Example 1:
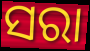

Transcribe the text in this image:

ସରା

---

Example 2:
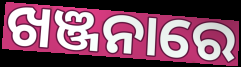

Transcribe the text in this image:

ଖଞ୍ଜନାରେ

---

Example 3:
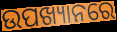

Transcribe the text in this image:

ଉପଖ୍ୟାନରେ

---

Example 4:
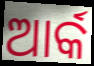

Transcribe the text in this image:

ଆର୍କ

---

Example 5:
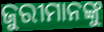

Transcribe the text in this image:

ଜୁରୀମାନଙ୍କୁ